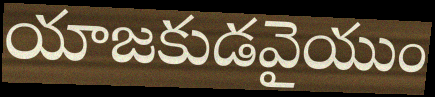
యాజకుడవైయుం